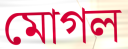
মোগল